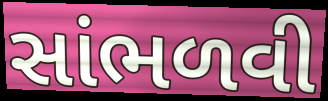
સાંભળવી